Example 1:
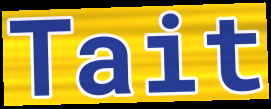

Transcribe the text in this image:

Tait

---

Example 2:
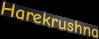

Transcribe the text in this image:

Harekrushna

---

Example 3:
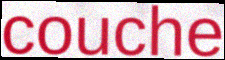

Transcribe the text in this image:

couche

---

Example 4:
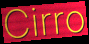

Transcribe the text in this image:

Cirro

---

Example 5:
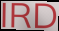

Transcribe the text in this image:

IRD